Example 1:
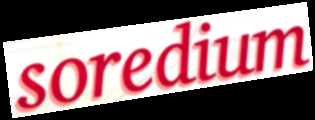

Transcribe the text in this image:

soredium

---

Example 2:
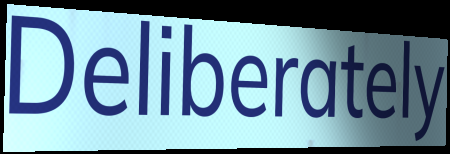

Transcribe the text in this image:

Deliberately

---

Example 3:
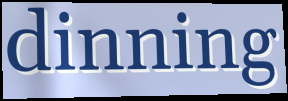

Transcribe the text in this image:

dinning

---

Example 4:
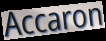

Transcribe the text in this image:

Accaron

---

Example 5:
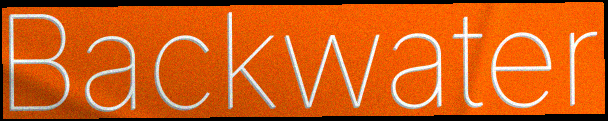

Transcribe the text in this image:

Backwater